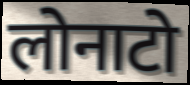
लोनाटो